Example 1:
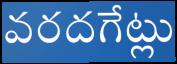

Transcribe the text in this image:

వరదగేట్లు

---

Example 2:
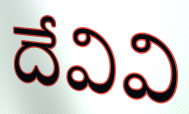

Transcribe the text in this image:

దేవివి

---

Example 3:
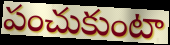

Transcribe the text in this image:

పంచుకుంటా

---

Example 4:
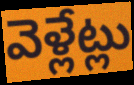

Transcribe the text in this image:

వెళ్లేట్లు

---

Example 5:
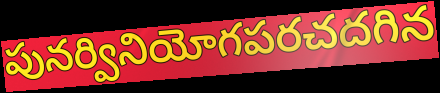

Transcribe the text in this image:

పునర్వినియోగపరచదగిన